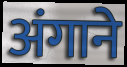
अंगाने